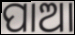
ପାଆ